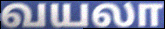
வயலா